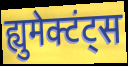
ह्युमेक्टंट्स